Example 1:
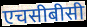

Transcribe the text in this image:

एचसीबीसी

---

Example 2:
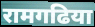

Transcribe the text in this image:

रामगढिया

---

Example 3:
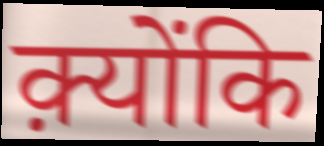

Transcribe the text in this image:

क़्योंकि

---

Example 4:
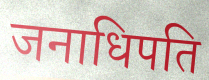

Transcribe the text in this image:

जनाधिपति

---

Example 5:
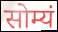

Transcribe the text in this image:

सोम्यं